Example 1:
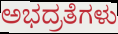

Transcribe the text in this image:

ಅಭದ್ರತೆಗಳು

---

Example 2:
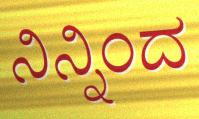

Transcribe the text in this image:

ನಿನ್ನಿಂದ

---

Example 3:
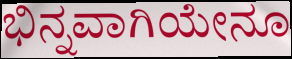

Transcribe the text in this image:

ಭಿನ್ನವಾಗಿಯೇನೂ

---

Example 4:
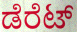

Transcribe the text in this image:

ಡೆರೆಟ್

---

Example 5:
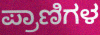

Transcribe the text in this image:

ಪ್ರಾಣಿಗಳ